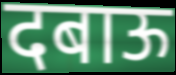
दबाऊ